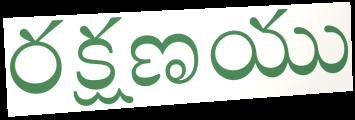
రక్షణయు